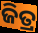
ଜିତ୍ର